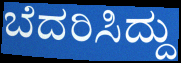
ಬೆದರಿಸಿದ್ದು